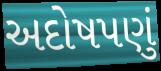
અદોષપણું